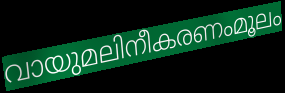
വായുമലിനീകരണംമൂലം